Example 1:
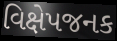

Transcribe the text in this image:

વિક્ષેપજનક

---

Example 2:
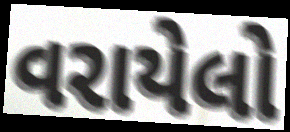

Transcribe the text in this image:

વરાયેલો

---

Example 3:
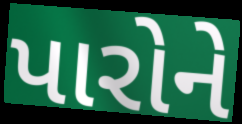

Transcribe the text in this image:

પારોને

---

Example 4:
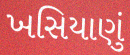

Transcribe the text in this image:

ખસિયાણું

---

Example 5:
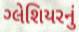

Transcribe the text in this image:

ગ્લેશિયરનું